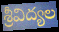
శ్రీవిద్యల